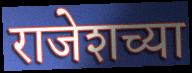
राजेशच्या